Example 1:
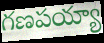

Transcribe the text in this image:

గణపయ్యా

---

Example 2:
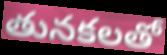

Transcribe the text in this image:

తునకలతో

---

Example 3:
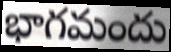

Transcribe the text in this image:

భాగమందు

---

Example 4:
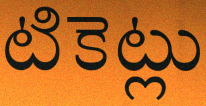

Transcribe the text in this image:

టికెట్లు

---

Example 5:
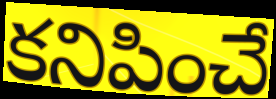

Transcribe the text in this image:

కనిపించే